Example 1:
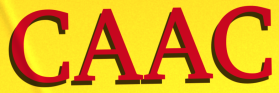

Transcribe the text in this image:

CAAC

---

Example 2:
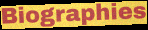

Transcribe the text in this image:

Biographies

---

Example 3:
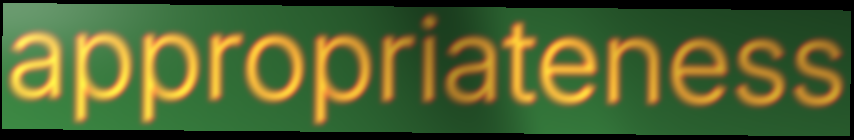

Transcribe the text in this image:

appropriateness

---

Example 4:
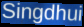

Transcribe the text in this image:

Singdhui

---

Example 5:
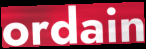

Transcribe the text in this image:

ordain